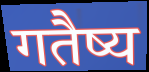
गतैष्य